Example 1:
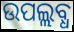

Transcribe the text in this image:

ଉପଲ୍ଲବ୍ଧ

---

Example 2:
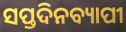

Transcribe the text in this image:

ସପ୍ତଦିନବ୍ୟାପୀ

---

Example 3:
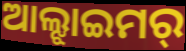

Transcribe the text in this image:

ଆଲ୍ଝାଇମର୍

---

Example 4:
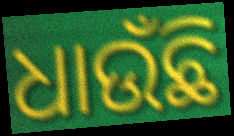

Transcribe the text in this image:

ଧାଉଁଛି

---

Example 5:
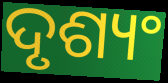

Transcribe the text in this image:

ଦୃଶ୍ୟଂ